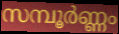
സമ്പൂർണ്ണം